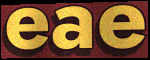
eae